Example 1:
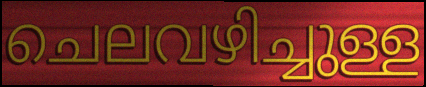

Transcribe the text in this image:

ചെലവഴിച്ചുള്ള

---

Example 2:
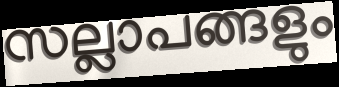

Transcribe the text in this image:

സല്ലാപങ്ങളും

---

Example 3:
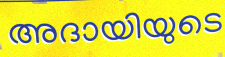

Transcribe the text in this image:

അദായിയുടെ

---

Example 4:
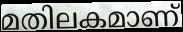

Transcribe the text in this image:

മതിലകമാണ്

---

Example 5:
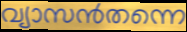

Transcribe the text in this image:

വ്യാസൻതന്നെ